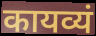
कायव्यं